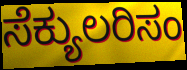
ಸೆಕ್ಯುಲರಿಸಂ